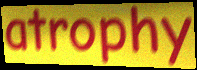
atrophy